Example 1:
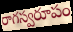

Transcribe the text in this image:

రాగస్వరూపం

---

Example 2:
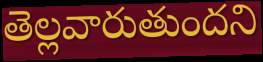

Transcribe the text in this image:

తెల్లవారుతుందని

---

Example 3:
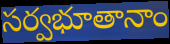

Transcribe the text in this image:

సర్వభూతానాం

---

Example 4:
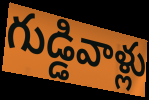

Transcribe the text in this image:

గుడ్డివాళ్లు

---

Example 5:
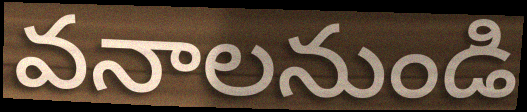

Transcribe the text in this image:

వనాలనుండి